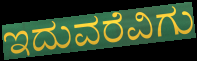
ಇದುವರೆವಿಗು